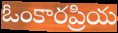
ఓంకారప్రియ